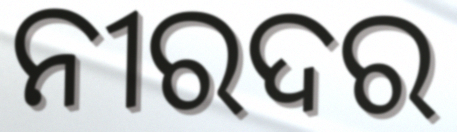
ନୀରଦର